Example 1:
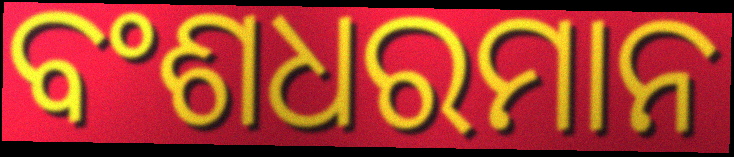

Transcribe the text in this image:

ବଂଶଧରମାନ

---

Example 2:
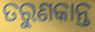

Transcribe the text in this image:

ତରୁଣକାନ୍ତ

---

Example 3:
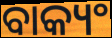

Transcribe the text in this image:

ବାକ୍ୟଂ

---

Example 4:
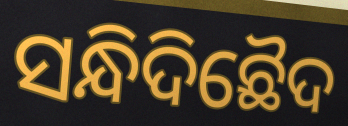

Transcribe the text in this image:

ସନ୍ଧିଦିଛୈଦ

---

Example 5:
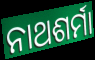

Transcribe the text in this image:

ନାଥଶର୍ମା